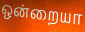
ஒன்றையா